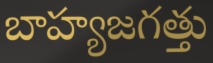
బాహ్యజగత్తు